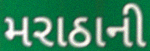
મરાઠાની